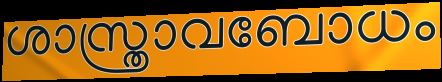
ശാസ്ത്രാവബോധം